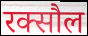
रक्सौल